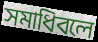
সমাধিবলে